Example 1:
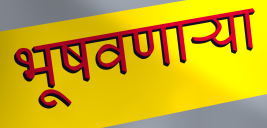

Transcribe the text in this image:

भूषवणाऱ्या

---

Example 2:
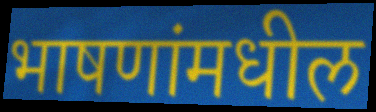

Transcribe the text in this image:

भाषणांमधील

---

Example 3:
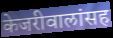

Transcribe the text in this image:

केजरीवालांसह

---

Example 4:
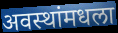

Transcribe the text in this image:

अवस्थांमधला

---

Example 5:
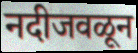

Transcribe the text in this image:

नदीजवळून